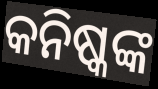
କନିଷ୍କଙ୍କ